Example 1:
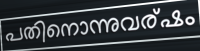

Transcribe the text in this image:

പതിനൊന്നുവര്ഷം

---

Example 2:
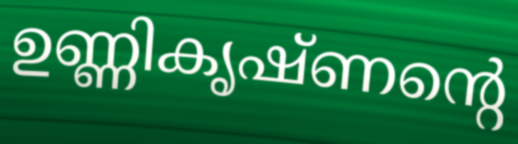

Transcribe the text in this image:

ഉണ്ണികൃഷ്ണന്റെ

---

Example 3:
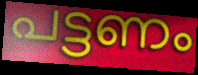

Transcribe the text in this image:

പട്ടണം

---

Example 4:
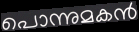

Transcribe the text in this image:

പൊന്നുമകൻ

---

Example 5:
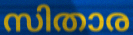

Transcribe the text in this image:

സിതാര